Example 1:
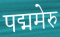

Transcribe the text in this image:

पद्ममेरु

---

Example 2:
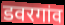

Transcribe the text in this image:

डवरगांव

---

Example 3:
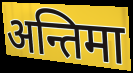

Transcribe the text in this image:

अन्तिमा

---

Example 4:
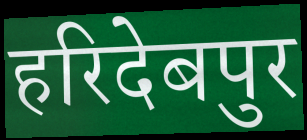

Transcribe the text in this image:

हरिदेबपुर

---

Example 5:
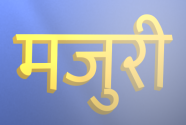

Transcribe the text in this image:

मजुरी